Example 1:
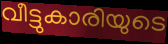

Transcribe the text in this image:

വീട്ടുകാരിയുടെ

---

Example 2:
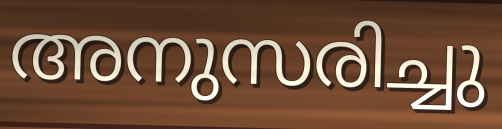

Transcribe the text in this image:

അനുസരിച്ചു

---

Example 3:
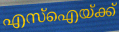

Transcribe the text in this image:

എസ്ഐയ്ക്ക്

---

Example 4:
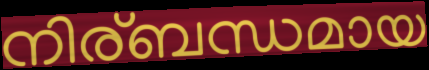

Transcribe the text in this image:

നിര്ബന്ധമായ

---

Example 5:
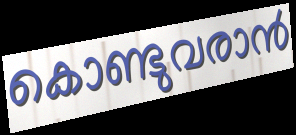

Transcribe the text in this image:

കൊണ്ടുവരാൻ